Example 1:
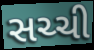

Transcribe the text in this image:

સચ્ચી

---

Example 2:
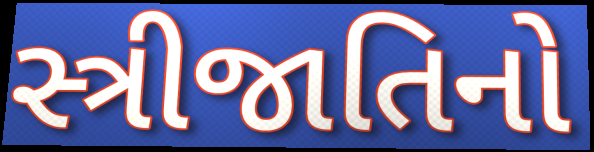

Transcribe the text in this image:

સ્ત્રીજાતિનો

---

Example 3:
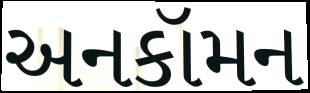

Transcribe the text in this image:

અનકૉમન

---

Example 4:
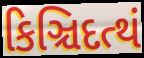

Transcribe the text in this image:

કિઞ્ચિદત્થં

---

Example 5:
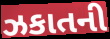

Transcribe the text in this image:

ઝકાતની